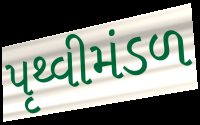
પૃથ્વીમંડળ